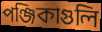
পঞ্জিকাগুলি